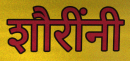
शौरींनी